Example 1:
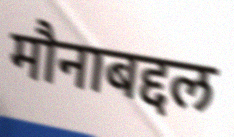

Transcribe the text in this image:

मौनाबद्दल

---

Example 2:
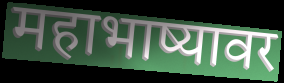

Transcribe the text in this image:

महाभाष्यावर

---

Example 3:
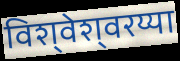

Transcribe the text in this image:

विश्वेश्वरय्या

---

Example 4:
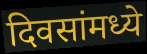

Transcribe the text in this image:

दिवसांमध्ये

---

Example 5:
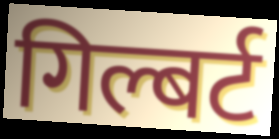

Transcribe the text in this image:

गिल्बर्ट